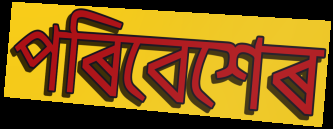
পৰিবেশেৰ